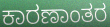
ಕಾರಣಾಂತರ